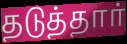
தடுத்தார்